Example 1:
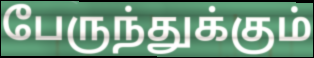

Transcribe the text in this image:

பேருந்துக்கும்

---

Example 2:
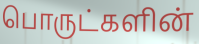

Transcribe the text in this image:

பொருட்களின்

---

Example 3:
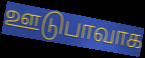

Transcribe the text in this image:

ஊடுபாவாக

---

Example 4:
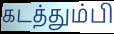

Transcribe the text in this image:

கடத்தும்பி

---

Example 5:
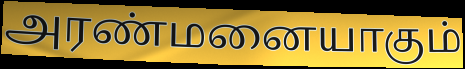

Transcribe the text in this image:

அரண்மனையாகும்